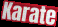
Karate